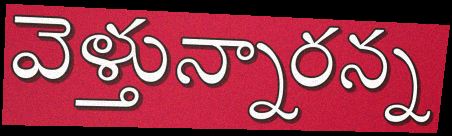
వెళ్తున్నారన్న